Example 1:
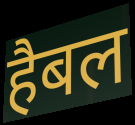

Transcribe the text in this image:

हैबल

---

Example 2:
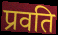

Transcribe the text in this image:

प्रवति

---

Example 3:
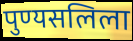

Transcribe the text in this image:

पुण्यसलिला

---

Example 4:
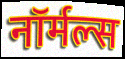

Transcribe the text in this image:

नॉर्मल्स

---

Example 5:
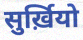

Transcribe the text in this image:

सुर्ख़ियो